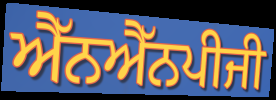
ਐੱਨਐੱਨਪੀਜੀ